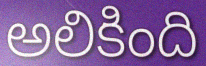
అలికింది